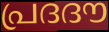
പ്രദദൗ